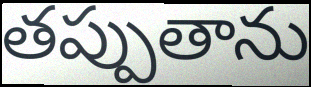
తప్పుతాను